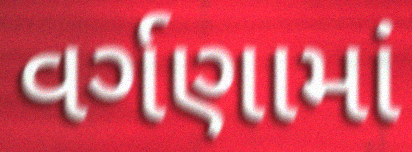
વર્ગણામાં